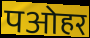
पओहर